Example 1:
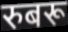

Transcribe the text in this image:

रुबरू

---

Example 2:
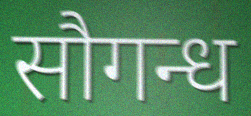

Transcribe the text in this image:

सौगन्ध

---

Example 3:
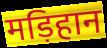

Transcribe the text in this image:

मड़िहान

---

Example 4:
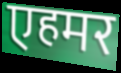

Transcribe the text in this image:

एहमर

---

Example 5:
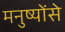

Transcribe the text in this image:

मनुष्योंसे